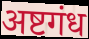
अष्टगंध